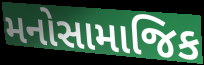
મનોસામાજિક